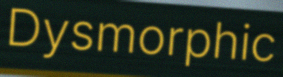
Dysmorphic